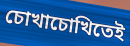
চোখাচোখিতেই